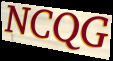
NCQG